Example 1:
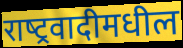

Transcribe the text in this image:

राष्ट्रवादीमधील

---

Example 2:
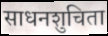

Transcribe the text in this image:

साधनशुचिता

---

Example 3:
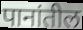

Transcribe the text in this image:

पानांतील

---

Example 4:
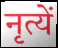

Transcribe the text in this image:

नृत्यें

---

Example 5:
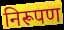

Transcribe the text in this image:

निरूपण